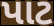
પાટ